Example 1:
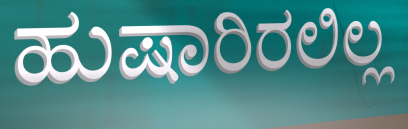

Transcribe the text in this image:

ಹುಷಾರಿರಲಿಲ್ಲ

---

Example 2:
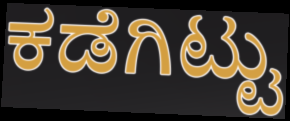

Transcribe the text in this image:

ಕಡೆಗಿಟ್ಟು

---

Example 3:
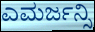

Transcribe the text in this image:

ಎಮರ್ಜನ್ಸಿ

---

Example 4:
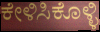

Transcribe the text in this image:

ಕೇಳಿಸಿಕೊಳ್ಳಿ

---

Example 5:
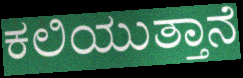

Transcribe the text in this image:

ಕಲಿಯುತ್ತಾನೆ